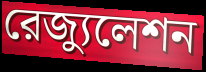
রেজ্যুলেশন